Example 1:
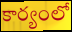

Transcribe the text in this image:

కార్యంలో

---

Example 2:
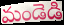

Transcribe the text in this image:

మండెడి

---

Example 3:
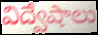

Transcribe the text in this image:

విద్వేషాలు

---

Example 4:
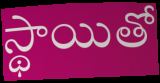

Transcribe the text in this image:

స్థాయితో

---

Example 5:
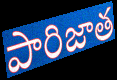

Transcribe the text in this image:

పారిజాత